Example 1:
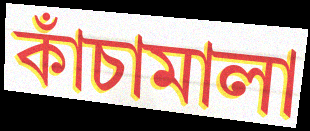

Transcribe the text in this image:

কাঁচামালা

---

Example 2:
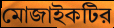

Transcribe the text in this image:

মোজাইকটির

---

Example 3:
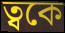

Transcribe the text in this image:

ত্বকে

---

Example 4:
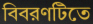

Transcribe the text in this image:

বিবরণটিতে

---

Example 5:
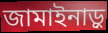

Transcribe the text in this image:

জামাইনাড়ু